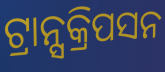
ଟ୍ରାନ୍ସକ୍ରିପସନ